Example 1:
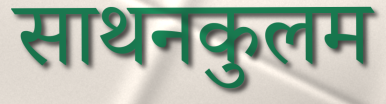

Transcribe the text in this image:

साथनकुलम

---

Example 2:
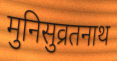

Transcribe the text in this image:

मुनिसुव्रतनाथ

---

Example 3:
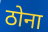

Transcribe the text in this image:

ठोना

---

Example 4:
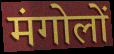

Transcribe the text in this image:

मंगोलों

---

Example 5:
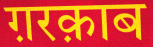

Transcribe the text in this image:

ग़रक़ाब